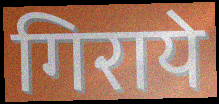
गिराये